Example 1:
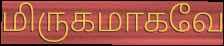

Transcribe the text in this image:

மிருகமாகவே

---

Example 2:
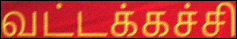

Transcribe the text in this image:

வட்டக்கச்சி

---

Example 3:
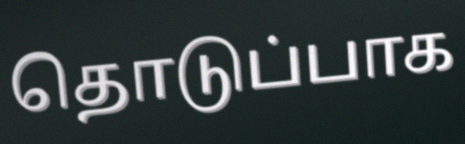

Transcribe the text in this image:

தொடுப்பாக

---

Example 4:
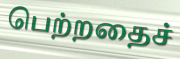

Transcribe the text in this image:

பெற்றதைச்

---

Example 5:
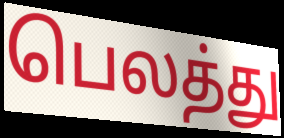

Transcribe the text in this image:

பெலத்து